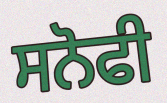
ਸਨੋਫੀ